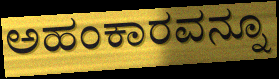
ಅಹಂಕಾರವನ್ನೂ